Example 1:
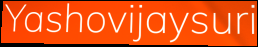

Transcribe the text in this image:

Yashovijaysuri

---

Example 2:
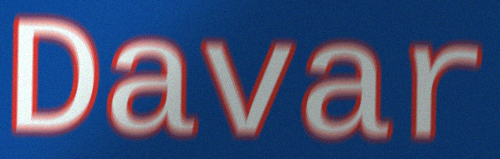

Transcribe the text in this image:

Davar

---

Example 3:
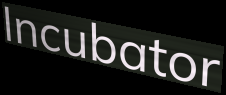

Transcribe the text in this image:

Incubator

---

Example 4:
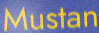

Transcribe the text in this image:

Mustan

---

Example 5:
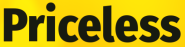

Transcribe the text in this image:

Priceless